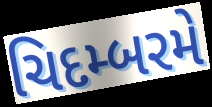
ચિદમ્બરમે